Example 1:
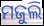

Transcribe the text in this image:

ମଜୁଲି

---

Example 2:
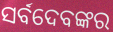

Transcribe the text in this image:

ସର୍ବଦେବଙ୍କର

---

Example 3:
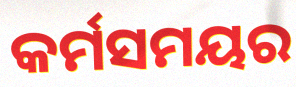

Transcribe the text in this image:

କର୍ମସମୟର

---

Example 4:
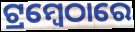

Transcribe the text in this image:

ଟ୍ରମ୍ବେଠାରେ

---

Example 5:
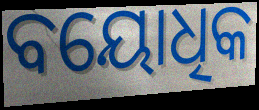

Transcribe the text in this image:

ବୟୋଧିକ